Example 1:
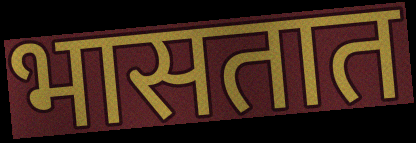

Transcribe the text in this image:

भासतात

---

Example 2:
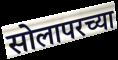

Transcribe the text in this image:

सोलापरच्या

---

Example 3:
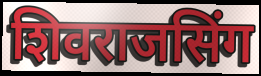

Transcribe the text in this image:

शिवराजसिंग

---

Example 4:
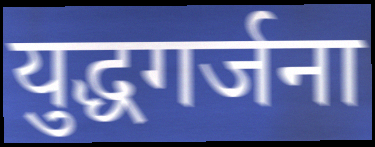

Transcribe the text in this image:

युद्धगर्जना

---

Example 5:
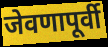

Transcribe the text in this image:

जेवणापूर्वी